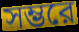
সম্ভরে